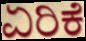
ಏರಿಕೆ